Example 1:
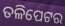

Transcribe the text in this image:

ତଳିପେଟର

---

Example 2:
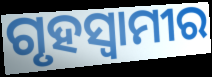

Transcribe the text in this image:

ଗୃହସ୍ୱାମୀର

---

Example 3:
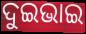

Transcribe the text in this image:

ଦୁଇଭାଇ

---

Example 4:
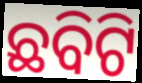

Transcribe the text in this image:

ଛବିଟି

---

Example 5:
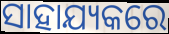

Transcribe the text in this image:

ସାହାଯ୍ୟକରେ